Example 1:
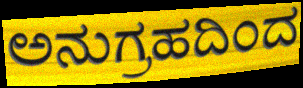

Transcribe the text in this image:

ಅನುಗ್ರಹದಿಂದ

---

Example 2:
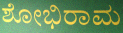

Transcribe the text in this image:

ಶೋಭಿರಾಮ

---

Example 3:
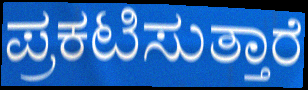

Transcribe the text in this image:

ಪ್ರಕಟಿಸುತ್ತಾರೆ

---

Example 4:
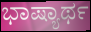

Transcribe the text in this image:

ಭಾಷ್ಯಾರ್ಥ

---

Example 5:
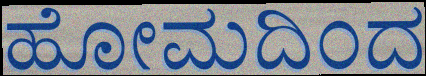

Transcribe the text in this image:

ಹೋಮದಿಂದ